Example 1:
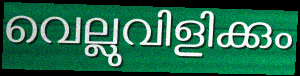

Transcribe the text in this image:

വെല്ലുവിളിക്കും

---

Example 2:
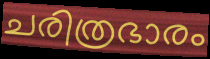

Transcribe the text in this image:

ചരിത്രഭാരം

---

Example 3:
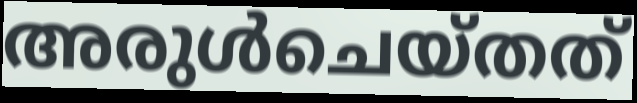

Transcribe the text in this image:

അരുൾചെയ്തത്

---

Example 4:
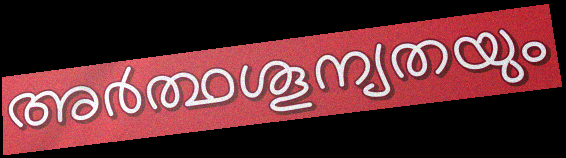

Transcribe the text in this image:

അർത്ഥശൂന്യതയും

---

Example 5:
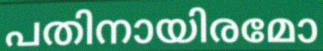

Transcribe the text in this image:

പതിനായിരമോ